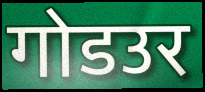
गोडउर